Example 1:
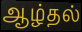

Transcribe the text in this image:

ஆழ்தல்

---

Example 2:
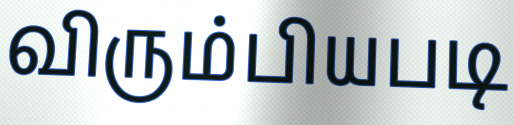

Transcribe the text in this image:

விரும்பியபடி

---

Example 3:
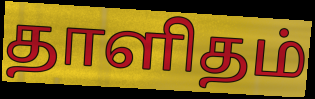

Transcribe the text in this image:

தாளிதம்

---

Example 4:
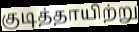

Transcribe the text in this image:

குடித்தாயிற்று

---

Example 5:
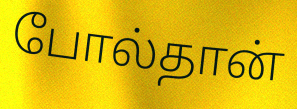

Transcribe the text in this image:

போல்தான்